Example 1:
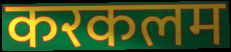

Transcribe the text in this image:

करकलम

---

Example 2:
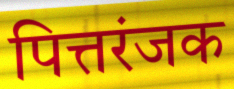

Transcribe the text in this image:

पित्तरंजक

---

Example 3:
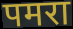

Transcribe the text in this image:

पमरा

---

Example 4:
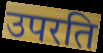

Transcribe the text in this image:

उपरति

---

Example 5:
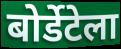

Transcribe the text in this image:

बोर्डेटेला